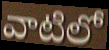
వాటిలో